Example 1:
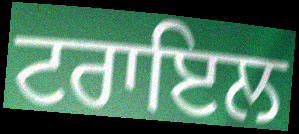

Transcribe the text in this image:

ਟਰਾਇਲ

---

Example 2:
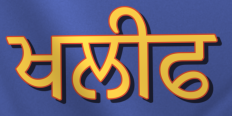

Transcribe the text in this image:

ਖਲੀਫ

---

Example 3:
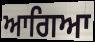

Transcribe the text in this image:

ਆਗਿਆ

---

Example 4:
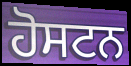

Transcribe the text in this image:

ਹੋਸਟਨ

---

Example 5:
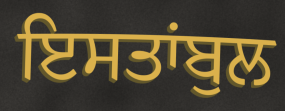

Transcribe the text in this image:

ਇਸਤਾਂਬੁਲ